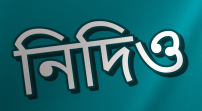
নিদিও